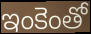
ఇంకెంతో